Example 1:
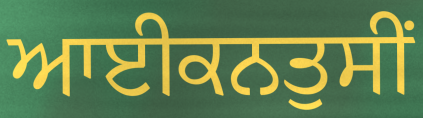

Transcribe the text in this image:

ਆਈਕਨਤੁਸੀਂ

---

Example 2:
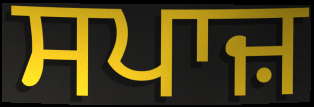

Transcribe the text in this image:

ਸਪਾਜ਼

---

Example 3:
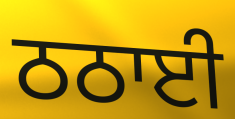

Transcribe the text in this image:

ਠਠਾਈ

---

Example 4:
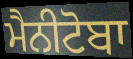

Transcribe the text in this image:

ਮੈਨੀਟੋਬਾ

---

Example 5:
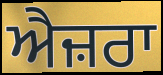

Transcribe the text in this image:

ਐਜ਼ਰਾ